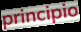
principio